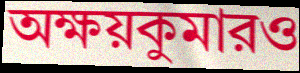
অক্ষয়কুমারও